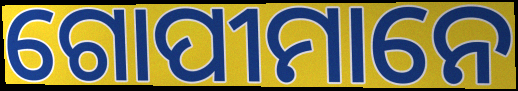
ଗୋପୀମାନେ